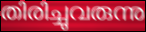
തിരിച്ചുവരുന്നു